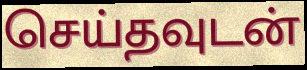
செய்தவுடன்